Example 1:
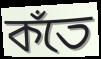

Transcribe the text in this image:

কঁতে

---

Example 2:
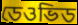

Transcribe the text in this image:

ডেওভিড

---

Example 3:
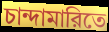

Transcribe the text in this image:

চান্দামারিতে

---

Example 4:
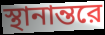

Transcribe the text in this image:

স্থানান্তরে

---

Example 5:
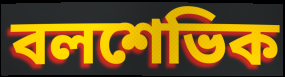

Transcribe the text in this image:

বলশেভিক